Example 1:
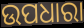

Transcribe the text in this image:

ଉପଧାରା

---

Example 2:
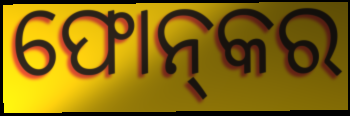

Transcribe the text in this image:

ଫୋନ୍‌କର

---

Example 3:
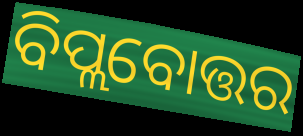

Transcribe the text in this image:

ବିପ୍ଲବୋତ୍ତର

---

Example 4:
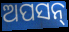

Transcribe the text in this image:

ଅପସନ୍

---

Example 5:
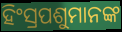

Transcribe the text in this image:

ହିଂସ୍ରପଶୁମାନଙ୍କ